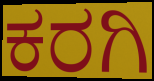
ಕರಗಿ